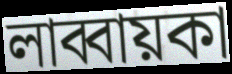
লাব্বায়কা